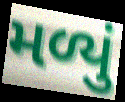
મળ્યું